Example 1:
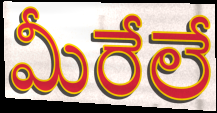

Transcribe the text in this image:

మీరేలే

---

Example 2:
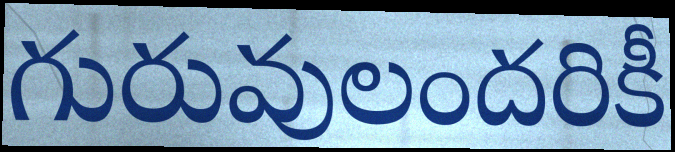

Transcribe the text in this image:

గురువులందరికీ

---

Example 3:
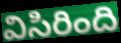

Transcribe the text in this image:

విసిరింది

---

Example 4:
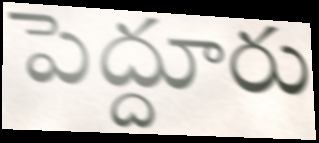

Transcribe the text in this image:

పెద్దూరు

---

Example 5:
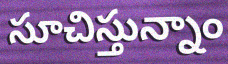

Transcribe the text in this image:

సూచిస్తున్నాం